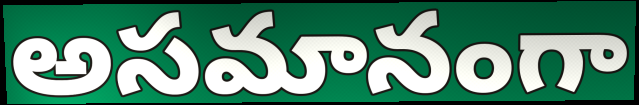
అసమానంగా